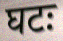
घटः